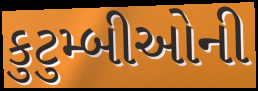
કુટુમ્બીઓની